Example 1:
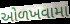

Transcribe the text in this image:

ઓળખવામા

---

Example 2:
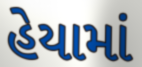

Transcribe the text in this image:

હેયામાં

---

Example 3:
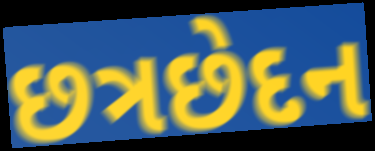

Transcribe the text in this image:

છત્રછેદન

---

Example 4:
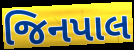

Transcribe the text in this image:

જિનપાલ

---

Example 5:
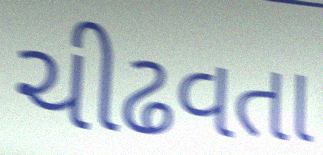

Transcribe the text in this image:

ચીઢવતા